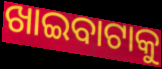
ଖାଇବାଟାକୁ